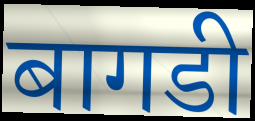
बागडी